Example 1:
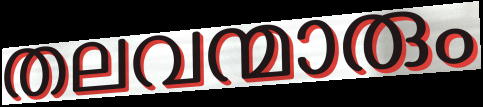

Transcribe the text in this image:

തലവന്മാരും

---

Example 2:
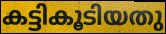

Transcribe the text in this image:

കട്ടികൂടിയതു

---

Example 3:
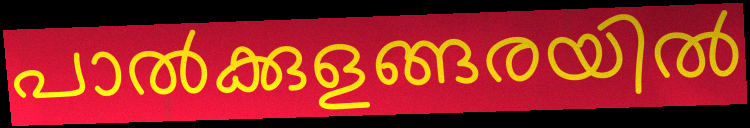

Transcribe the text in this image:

പാൽക്കുളങ്ങരയിൽ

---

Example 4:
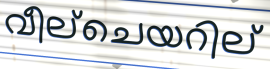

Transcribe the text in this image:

വീല്ചെയറില്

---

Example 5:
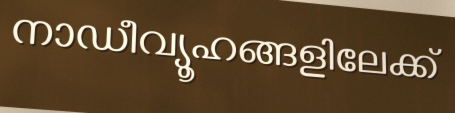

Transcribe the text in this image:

നാഡീവ്യൂഹങ്ങളിലേക്ക്